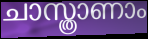
ചാസ്ത്രാണാം